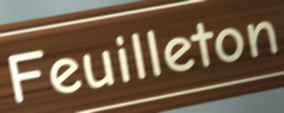
Feuilleton